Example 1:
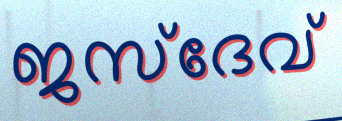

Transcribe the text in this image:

ജസ്ദേവ്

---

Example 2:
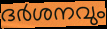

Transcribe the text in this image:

ദർശനവും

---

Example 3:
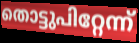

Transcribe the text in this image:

തൊട്ടുപിറ്റേന്ന്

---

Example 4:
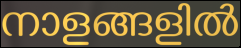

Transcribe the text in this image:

നാളങ്ങളിൽ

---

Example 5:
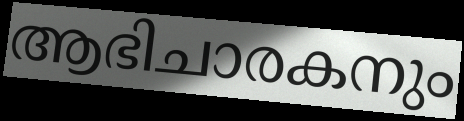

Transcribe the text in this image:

ആഭിചാരകനും